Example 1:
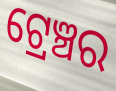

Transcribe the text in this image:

ଟ୍ରେଞ୍ଚର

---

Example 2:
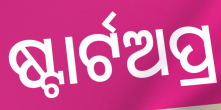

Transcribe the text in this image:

ଷ୍ଟାର୍ଟଅପ୍ର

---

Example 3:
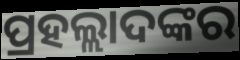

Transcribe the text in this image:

ପ୍ରହଲ୍ଲାଦଙ୍କର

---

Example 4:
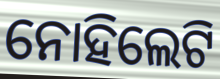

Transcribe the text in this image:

ନୋହିଲେଟି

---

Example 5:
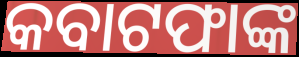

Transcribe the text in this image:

କବାଟଫାଙ୍କ